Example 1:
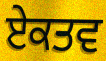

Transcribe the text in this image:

ਏਕਤਵ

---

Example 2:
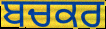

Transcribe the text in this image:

ਬਚਕਰ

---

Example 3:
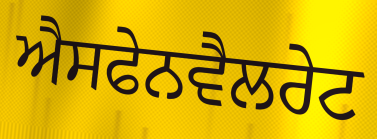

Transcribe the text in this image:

ਐਸਫੇਨਵੈਲਰੇਟ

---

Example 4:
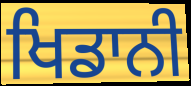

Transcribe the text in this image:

ਖਿਡਾਨੀ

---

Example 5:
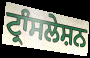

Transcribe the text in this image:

ਟ੍ਰਾੰਸਲੇਸ਼ਨ